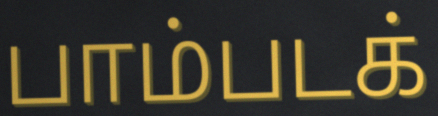
பாம்படக்